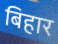
बिहार